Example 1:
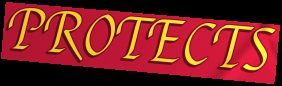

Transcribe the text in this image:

PROTECTS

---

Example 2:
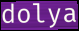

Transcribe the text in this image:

dolya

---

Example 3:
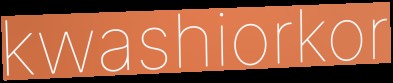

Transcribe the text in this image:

kwashiorkor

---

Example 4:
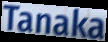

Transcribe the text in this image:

Tanaka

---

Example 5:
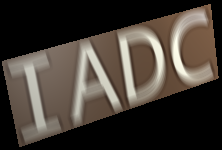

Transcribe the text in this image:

IADC